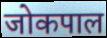
जोकपाल